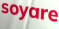
soyare